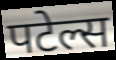
पटेल्स